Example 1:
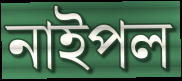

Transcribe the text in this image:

নাইপল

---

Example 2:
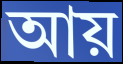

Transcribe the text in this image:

আয়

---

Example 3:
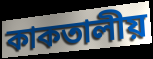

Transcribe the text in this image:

কাকতালীয়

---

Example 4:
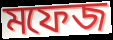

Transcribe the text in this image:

মফেজ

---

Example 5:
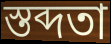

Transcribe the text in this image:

স্তব্দতা